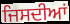
ਜਿਸਦੀਆਂ